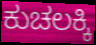
ಕುಚಲಕ್ಕಿ